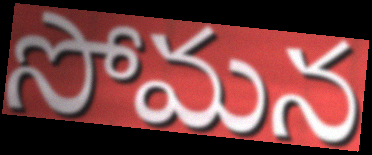
సోమన